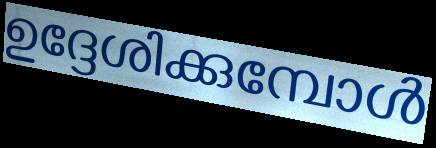
ഉദ്ദേശിക്കുമ്പോൾ